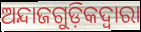
ଅନ୍ଦାଜଗୁଡ଼ିକଦ୍ୱାରା